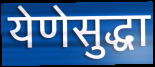
येणेसुद्धा